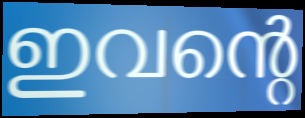
ഇവന്റെ